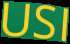
USI